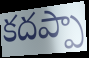
కదప్పా